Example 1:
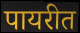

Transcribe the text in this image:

पायरीत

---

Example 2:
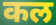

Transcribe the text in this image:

कल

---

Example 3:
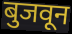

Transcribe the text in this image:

बुजवून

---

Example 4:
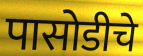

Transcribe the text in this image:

पासोडीचे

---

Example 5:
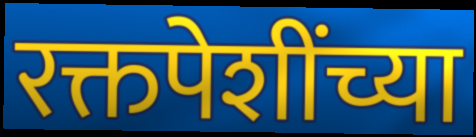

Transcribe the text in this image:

रक्तपेशींच्या